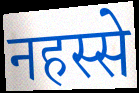
नहस्से